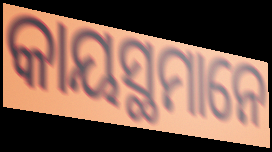
କାୟସ୍ଥମାନେ